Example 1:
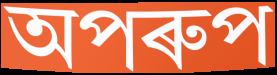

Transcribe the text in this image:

অপৰুপ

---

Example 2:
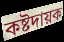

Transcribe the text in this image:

কষ্টদায়ক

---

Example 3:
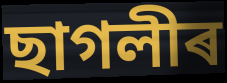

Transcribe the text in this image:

ছাগলীৰ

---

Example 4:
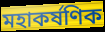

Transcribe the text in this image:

মহাকৰ্ষণিক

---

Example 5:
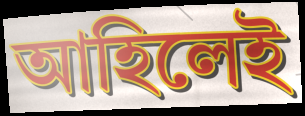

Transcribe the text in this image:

আহিলেই